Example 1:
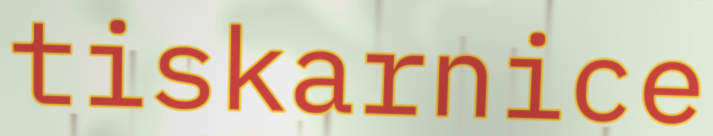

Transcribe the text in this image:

tiskarnice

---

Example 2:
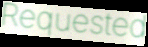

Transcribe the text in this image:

Requested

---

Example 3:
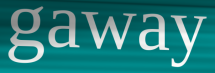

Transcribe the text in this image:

gaway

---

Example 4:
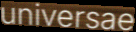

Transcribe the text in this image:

universae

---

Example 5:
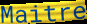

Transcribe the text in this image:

Maitre